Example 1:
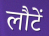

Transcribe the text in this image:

लौटें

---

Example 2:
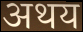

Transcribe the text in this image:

अथय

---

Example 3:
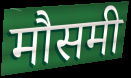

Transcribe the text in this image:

मौसमी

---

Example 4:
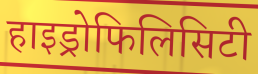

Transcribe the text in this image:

हाइड्रोफिलिसिटी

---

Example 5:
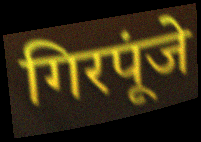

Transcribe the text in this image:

गिरपूंजे